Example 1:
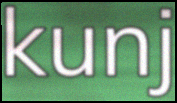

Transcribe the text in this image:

kunj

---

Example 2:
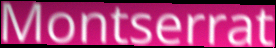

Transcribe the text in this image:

Montserrat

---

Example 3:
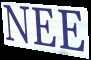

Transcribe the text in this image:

NEE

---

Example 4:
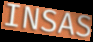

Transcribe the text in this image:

INSAS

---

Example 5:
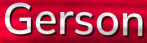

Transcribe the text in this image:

Gerson